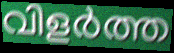
വിളർത്ത